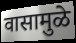
वासामुळे